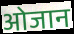
ओजान